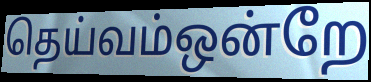
தெய்வம்ஒன்றே